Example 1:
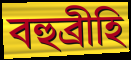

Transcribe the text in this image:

বহুব্ৰীহি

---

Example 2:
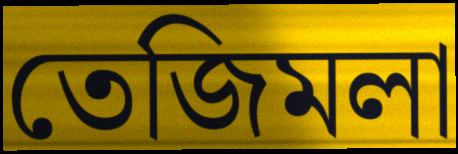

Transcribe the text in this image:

তেজিমলা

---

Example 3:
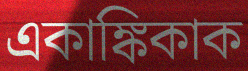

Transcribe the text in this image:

একাঙ্কিকাক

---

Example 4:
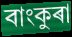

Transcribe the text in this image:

বাংকুৰা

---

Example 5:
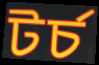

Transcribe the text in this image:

টৰ্চ